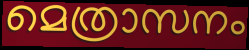
മെത്രാസനം